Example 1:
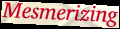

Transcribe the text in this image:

Mesmerizing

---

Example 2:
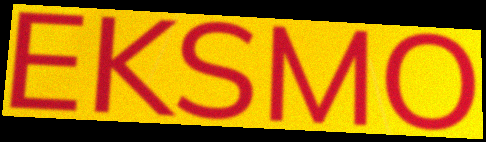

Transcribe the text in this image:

EKSMO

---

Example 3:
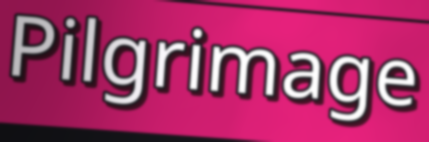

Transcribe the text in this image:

Pilgrimage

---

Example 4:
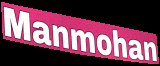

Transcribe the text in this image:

Manmohan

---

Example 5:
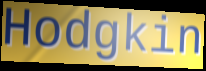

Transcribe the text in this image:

Hodgkin